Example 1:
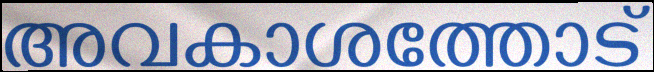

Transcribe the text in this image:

അവകാശത്തോട്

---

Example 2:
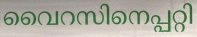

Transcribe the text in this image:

വൈറസിനെപ്പറ്റി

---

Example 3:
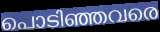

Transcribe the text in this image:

പൊടിഞ്ഞവരെ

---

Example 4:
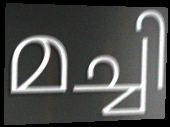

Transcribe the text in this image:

മച്ചി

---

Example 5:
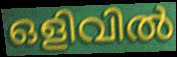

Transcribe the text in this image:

ഒളിവിൽ